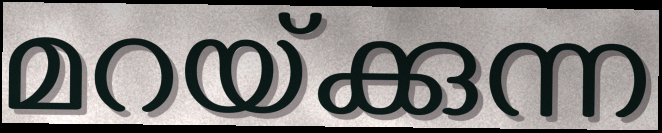
മറയ്‌ക്കുന്ന